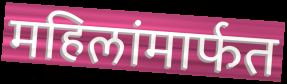
महिलांमार्फत